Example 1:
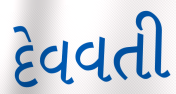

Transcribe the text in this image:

દેવવતી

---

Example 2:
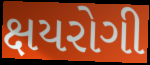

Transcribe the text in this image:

ક્ષયરોગી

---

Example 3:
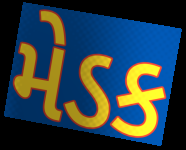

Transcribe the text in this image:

મેડક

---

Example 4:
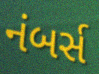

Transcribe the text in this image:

નંબર્સ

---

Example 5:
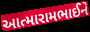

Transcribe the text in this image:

આત્મારામભાઈને